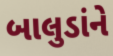
બાલુડાંને